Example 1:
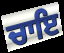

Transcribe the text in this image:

ਚਾਇ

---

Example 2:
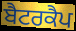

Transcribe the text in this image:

ਬੈਟਰਕੈਪ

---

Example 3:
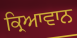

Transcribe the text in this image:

ਕ੍ਰਿਆਵਾਨ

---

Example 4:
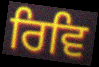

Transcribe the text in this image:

ਰਿਵਿ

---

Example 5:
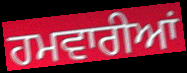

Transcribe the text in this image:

ਹਮਵਾਰੀਆਂ